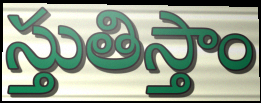
స్తుతిస్తాం